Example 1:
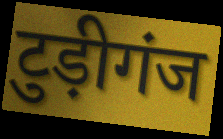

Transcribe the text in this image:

टुड़ीगंज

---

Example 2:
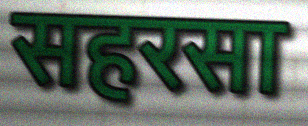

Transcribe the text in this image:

सहरसा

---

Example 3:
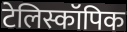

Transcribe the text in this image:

टेलिस्कॉपिक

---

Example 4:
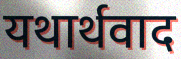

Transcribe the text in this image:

यथार्थवाद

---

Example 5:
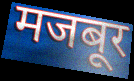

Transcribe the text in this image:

मजबूर